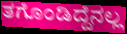
ತಗೊಂಡಿದ್ದೆನಲ್ಲ